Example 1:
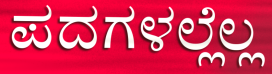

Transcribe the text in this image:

ಪದಗಳಲ್ಲೆಲ್ಲ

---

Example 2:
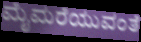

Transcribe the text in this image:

ಮೈಮರೆಯುವಂತೆ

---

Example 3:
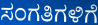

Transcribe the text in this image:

ಸಂಗತಿಗಳಿಗೆ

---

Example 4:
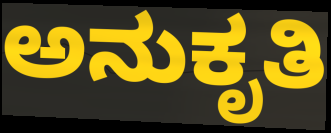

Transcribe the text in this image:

ಅನುಕೃತಿ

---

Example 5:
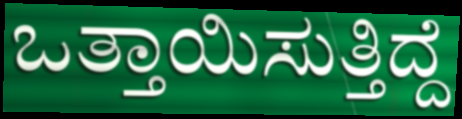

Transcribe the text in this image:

ಒತ್ತಾಯಿಸುತ್ತಿದ್ದೆ